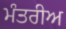
ਮੰਤਰੀਅ